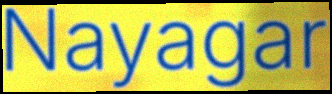
Nayagar